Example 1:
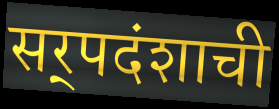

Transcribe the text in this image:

सर्पदंशाची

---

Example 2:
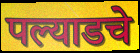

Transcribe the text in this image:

पल्याडचे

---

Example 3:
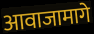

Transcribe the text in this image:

आवाजामागे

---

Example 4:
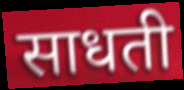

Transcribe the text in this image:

साधती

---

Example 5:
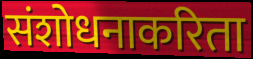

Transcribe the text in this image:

संशोधनाकरिता